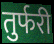
तुर्फरी